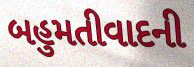
બહુમતીવાદની